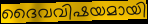
ദൈവവിഷയമായി